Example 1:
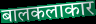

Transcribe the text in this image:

बालकलाकार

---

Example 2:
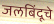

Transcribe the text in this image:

जलबिंदूचे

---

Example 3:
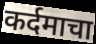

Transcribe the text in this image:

कर्दमाचा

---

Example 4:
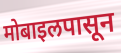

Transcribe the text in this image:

मोबाइलपासून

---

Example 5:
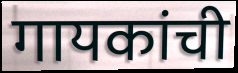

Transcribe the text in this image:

गायकांची